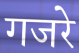
गजरे